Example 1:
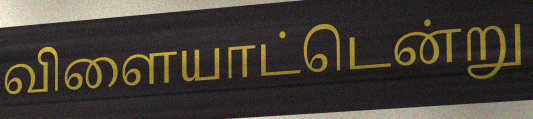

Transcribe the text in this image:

விளையாட்டென்று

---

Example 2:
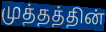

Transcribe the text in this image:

முத்தத்தின்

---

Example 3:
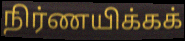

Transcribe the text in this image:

நிர்ணயிக்கக்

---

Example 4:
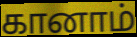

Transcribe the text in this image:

கானாம்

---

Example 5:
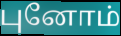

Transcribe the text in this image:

புனோம்